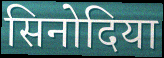
सिनोदिया